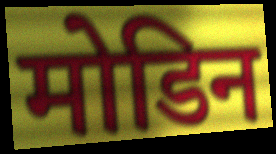
मोडिन